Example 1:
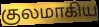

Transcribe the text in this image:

குலமாகிய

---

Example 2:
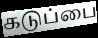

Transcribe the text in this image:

கடுப்பை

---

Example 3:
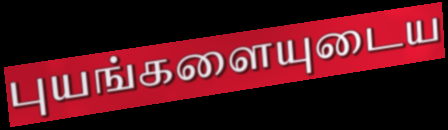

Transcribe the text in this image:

புயங்களையுடைய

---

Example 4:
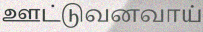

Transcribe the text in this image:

ஊட்டுவனவாய்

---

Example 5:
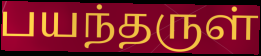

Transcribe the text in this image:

பயந்தருள்